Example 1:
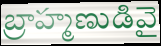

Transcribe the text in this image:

బ్రాహ్మణుడివై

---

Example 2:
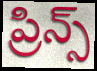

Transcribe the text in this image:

ప్రిన్స్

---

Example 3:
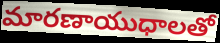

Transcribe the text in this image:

మారణాయుధాలతో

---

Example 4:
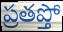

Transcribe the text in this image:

ప్రతప్తో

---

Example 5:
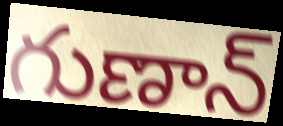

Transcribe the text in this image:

గుణాన్